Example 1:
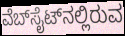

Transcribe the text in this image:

ವೆಬ್‌ಸೈಟ್‌ನಲ್ಲಿರುವ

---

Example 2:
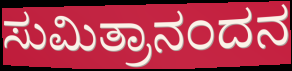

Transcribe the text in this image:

ಸುಮಿತ್ರಾನಂದನ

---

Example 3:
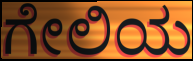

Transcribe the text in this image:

ಗೇಲಿಯ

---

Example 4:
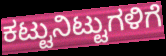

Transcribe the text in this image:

ಕಟ್ಟುನಿಟ್ಟುಗಳಿಗೆ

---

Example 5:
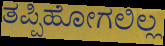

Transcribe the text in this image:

ತಪ್ಪಿಹೋಗಲಿಲ್ಲ